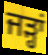
ਜੜ੍ਹਾਂ